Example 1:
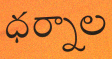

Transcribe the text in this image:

ధర్నాల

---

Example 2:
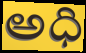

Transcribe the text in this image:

అధి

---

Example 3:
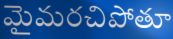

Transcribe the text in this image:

మైమరచిపోతూ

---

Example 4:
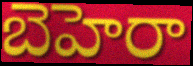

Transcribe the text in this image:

బెహెరా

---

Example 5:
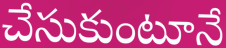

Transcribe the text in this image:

చేసుకుంటూనే